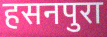
हसनपुरा